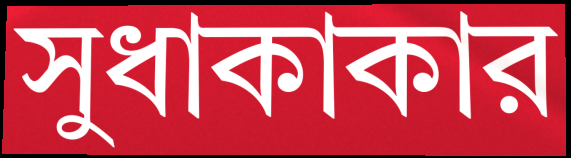
সুধাকাকার